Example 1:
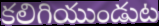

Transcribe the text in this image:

కలిగియుండుట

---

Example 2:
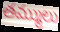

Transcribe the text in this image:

తమ్ములు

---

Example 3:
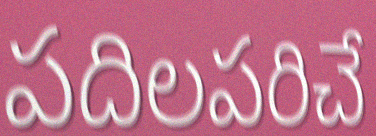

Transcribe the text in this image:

పదిలపరిచే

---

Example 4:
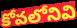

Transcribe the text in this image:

కోవలోనివి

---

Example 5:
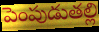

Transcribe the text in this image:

పెంపుడుతల్లి